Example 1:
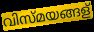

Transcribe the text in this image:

വിസ്മയങ്ങള്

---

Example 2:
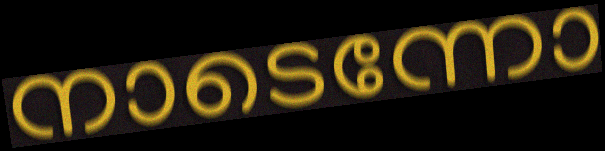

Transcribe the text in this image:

നാടെന്നോ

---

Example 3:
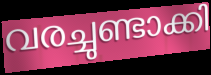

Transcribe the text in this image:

വരച്ചുണ്ടാക്കി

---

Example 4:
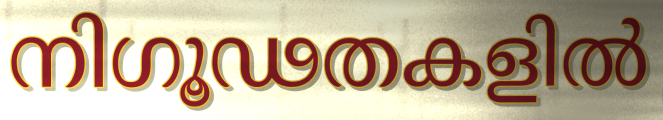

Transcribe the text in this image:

നിഗൂഢതകളിൽ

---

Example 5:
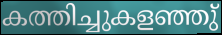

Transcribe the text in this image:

കത്തിച്ചുകളഞ്ഞു്